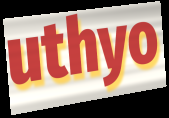
uthyo